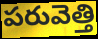
పరువెత్తి